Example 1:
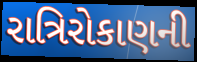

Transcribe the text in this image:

રાત્રિરોકાણની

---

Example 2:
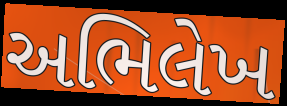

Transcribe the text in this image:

અભિલેખ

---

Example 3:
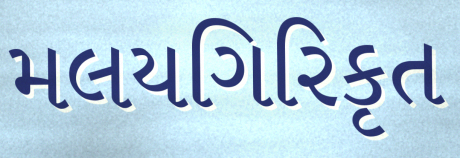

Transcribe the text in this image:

મલયગિરિકૃત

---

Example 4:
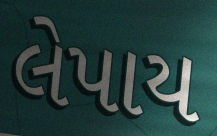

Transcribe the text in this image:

લેપાય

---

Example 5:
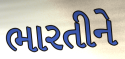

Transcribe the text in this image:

ભારતીને